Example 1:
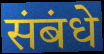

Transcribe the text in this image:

संबंधे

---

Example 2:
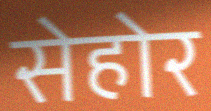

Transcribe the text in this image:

सेहोर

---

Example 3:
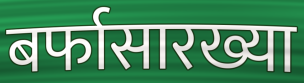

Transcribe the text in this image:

बर्फासारख्या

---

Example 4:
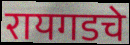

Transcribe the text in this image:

रायगडचे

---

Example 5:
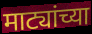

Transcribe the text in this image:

माट्यांच्या